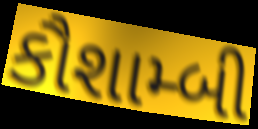
કૌશામ્બી